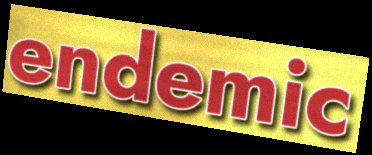
endemic